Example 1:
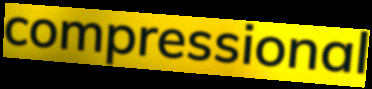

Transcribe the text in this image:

compressional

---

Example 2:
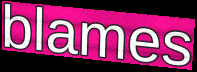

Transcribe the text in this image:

blames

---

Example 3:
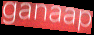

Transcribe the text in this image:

ganaap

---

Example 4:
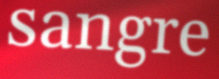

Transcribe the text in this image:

sangre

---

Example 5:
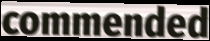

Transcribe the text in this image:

commended